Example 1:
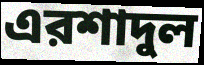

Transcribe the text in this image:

এরশাদুল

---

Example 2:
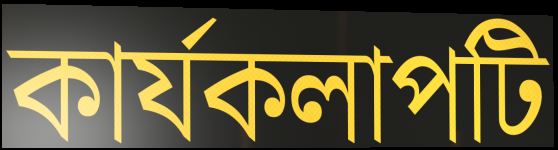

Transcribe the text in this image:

কার্যকলাপটি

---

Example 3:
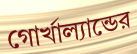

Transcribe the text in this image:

গোর্খাল্যান্ডের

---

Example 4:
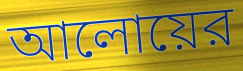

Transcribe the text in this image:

আলোয়ের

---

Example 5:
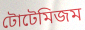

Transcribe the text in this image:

টোটেমিজম